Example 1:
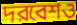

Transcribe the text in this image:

দরবেশও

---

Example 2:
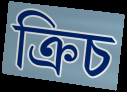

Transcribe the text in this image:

ক্রিচ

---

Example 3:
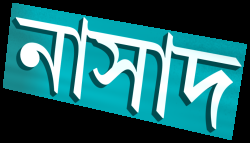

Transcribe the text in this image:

নাসাদ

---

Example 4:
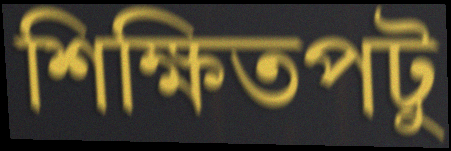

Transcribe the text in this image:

শিক্ষিতপটু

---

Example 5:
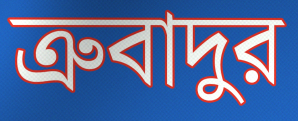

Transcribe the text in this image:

ত্রুবাদুর